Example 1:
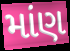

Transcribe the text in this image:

માંણ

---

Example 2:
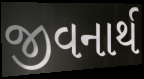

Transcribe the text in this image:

જીવનાર્થ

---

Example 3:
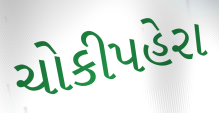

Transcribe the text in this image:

ચોકીપહેરા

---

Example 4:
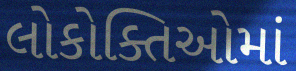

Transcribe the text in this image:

લોકોક્તિઓમાં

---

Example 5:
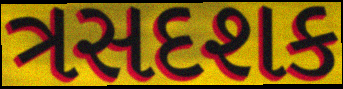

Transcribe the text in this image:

ત્રસદશક